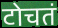
टोचतं